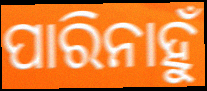
ପାରିନାହୁଁ